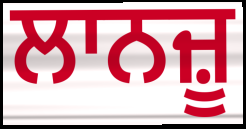
ਲਾਨਜ਼ੂ